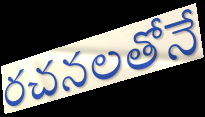
రచనలతోనే